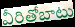
వీరితోబాటు